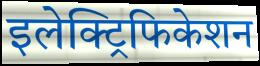
इलेक्ट्रिफिकेशन